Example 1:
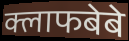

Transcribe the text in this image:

क्लाफबेबे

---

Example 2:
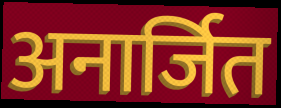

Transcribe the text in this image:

अनार्जित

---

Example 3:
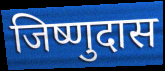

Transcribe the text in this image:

जिष्णुदास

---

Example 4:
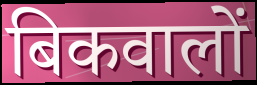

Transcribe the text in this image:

बिकवालों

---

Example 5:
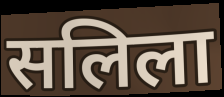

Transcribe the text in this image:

सलिला